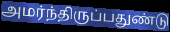
அமர்ந்திருப்பதுண்டு